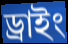
ড্রাইং